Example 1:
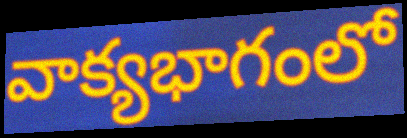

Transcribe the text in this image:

వాక్యభాగంలో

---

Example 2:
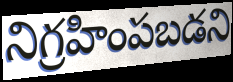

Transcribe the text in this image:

నిగ్రహింపబడని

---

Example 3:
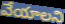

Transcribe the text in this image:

వేయాలని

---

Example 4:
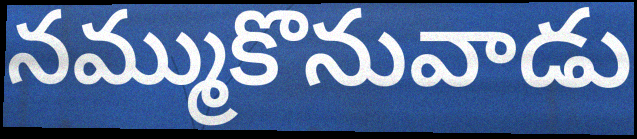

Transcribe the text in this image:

నమ్ముకొనువాడు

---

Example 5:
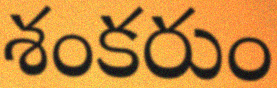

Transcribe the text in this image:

శంకరుం